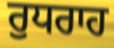
ਰੁਧਰਾਹ